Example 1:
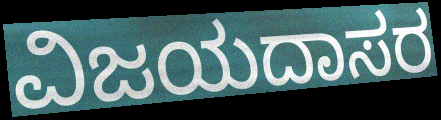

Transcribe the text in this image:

ವಿಜಯದಾಸರ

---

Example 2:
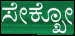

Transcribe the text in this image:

ಸೇಕ್ಖೋ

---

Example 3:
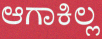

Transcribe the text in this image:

ಆಗಾಕಿಲ್ಲ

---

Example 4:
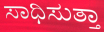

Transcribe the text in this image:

ಸಾಧಿಸುತ್ತಾ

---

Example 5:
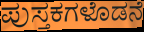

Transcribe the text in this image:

ಪುಸ್ತಕಗಳೊಡನೆ